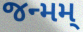
જન્મમ્